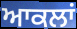
ਆਕਲਾਂ